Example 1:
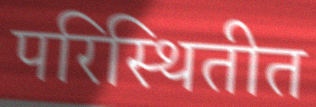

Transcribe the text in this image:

परिस्थितीत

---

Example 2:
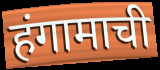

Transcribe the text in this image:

हंगामाची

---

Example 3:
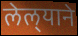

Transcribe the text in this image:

लेल्याने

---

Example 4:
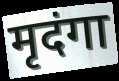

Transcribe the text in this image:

मृदंगा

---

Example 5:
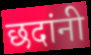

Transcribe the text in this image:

छदांनी